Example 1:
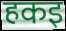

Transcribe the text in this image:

हकइ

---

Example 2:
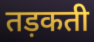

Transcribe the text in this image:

तड़कती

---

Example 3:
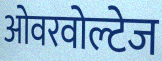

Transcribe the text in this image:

ओवरवोल्टेज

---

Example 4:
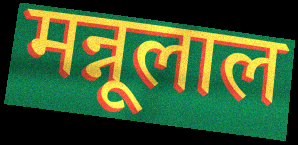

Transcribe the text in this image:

मन्नूलाल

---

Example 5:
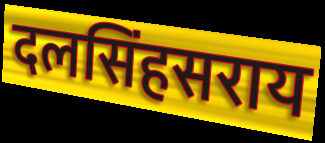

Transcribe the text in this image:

दलसिंहसराय